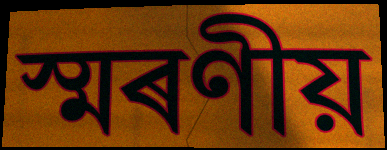
স্মৰণীয়